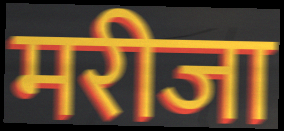
मरीजा